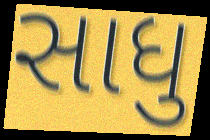
સાધુ